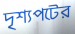
দৃশ্যপটের